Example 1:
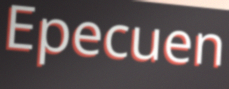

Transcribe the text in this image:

Epecuen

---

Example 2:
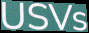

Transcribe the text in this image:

USVs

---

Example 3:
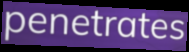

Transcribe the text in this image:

penetrates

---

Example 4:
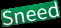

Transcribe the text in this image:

Sneed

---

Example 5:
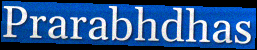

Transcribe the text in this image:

Prarabhdhas